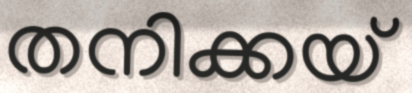
തനിക്കയ്